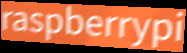
raspberrypi